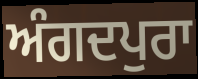
ਅੰਗਦਪੁਰਾ